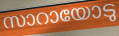
സാറായോടു